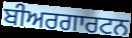
ਬੀਅਰਗਾਰਟਨ